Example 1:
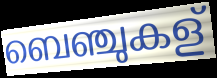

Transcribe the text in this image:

ബെഞ്ചുകള്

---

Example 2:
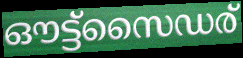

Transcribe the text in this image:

ഔട്ട്സൈഡര്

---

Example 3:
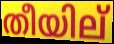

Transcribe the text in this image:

തീയില്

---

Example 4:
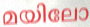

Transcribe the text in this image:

മയിലോ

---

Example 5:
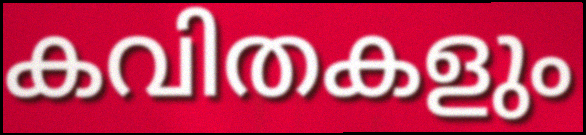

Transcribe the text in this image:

കവിതകളും